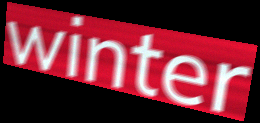
winter